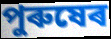
পুৰুষেৰ